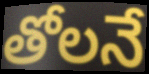
తోలనే